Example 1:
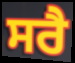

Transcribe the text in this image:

ਸਰੈ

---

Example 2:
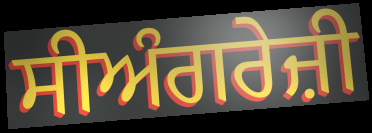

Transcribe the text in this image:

ਸੀਅੰਗਰੇਜ਼ੀ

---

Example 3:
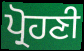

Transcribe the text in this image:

ਪ੍ਰੋਹਣੀ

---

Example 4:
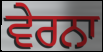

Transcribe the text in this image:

ਵੇਰਨਾ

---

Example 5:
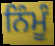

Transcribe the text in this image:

ਨਿੰਮੂੰ